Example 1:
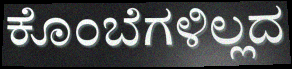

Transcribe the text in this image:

ಕೊಂಬೆಗಳಿಲ್ಲದ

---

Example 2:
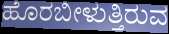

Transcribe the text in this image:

ಹೊರಬೀಳುತ್ತಿರುವ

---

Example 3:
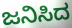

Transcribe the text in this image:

ಜನಿಸಿದ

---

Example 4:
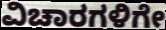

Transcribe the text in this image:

ವಿಚಾರಗಳಿಗೇ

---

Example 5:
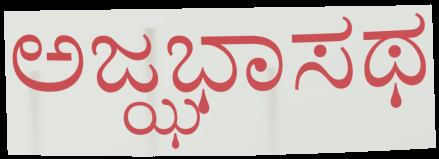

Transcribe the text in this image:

ಅಜ್ಝಭಾಸಥ